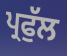
ਪ੍ਰਫੁੱਲ